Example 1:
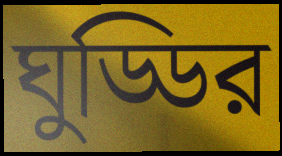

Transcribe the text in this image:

ঘুড্ডির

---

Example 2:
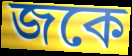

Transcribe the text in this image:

জকে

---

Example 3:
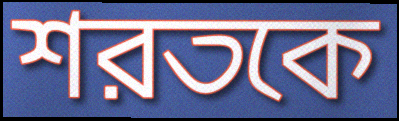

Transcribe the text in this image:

শরতকে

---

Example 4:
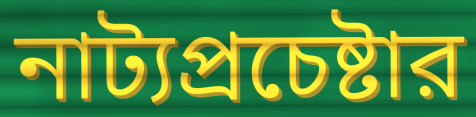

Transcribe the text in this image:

নাট্যপ্রচেষ্টার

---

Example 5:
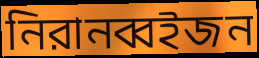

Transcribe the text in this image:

নিরানব্বইজন